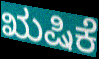
ಋಷಿಕೆ